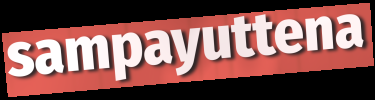
sampayuttena